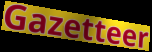
Gazetteer